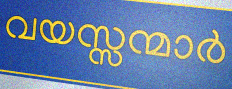
വയസ്സന്മാർ